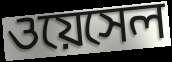
ওয়েসেল